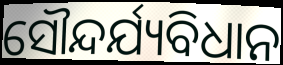
ସୌନ୍ଦର୍ଯ୍ୟବିଧାନ